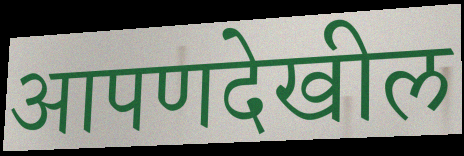
आपणदेखील